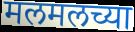
मलमलच्या